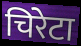
चिरेटा